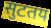
सुटतय